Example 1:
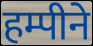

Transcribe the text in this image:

हम्पीने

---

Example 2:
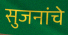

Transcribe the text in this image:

सुजनांचे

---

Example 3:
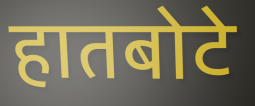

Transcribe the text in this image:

हातबोटे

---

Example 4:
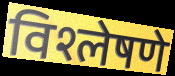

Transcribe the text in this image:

विश्लेषणे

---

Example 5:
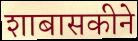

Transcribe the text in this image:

शाबासकीने